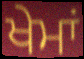
ਖੇਮਾਂ